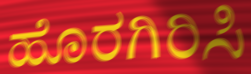
ಹೊರಗಿರಿಸಿ